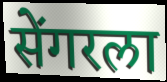
सेंगरला